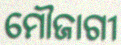
ମୌଜାଗୀ